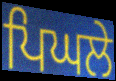
ਪਿਘਲੇ